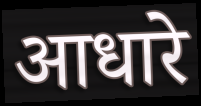
आधारे